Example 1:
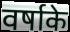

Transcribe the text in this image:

वर्षाके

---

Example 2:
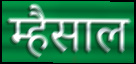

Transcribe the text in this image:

म्हैसाल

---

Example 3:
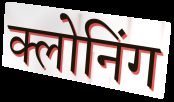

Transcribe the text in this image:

क्‍लोनिंग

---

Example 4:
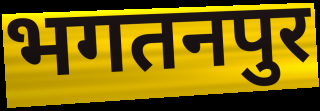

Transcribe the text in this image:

भगतनपुर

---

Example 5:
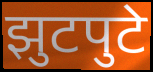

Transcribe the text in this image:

झुटपुटे